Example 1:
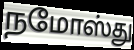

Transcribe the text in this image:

நமோஸ்து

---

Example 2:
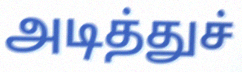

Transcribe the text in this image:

அடித்துச்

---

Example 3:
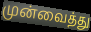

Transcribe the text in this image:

முன்வைத்து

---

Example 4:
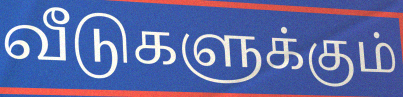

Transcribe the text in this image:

வீடுகளுக்கும்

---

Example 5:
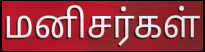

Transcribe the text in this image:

மனிசர்கள்